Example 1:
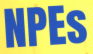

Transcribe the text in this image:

NPEs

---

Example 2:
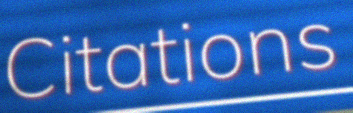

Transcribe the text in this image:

Citations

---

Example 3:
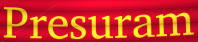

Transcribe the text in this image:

Presuram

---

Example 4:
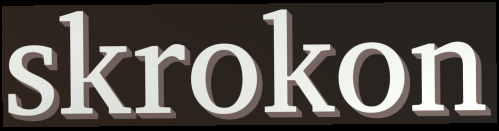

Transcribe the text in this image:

skrokon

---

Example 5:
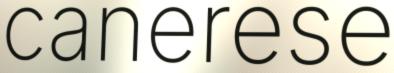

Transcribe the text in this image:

canerese